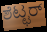
ಶೆಟ್ಟರ್